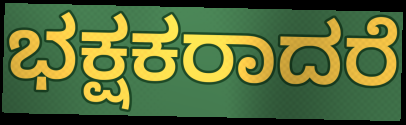
ಭಕ್ಷಕರಾದರೆ